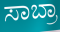
ಸಾಬ್ರಾ